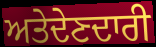
ਅਤੇਦੇਣਦਾਰੀ